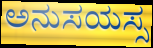
ಅನುಸಯಸ್ಸ